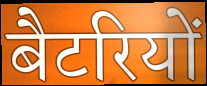
बैटरियों